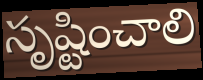
సృష్టించాలి